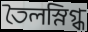
তৈলস্নিগ্ধ